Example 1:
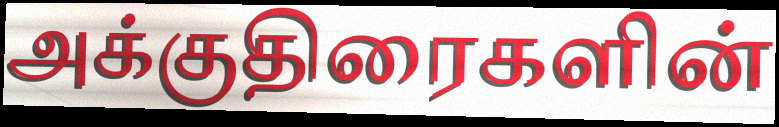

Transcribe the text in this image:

அக்குதிரைகளின்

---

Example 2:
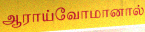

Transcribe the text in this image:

ஆராய்வோமானால்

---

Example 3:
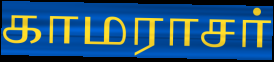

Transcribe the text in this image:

காமராசர்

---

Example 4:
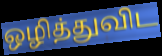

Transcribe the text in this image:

ஒழித்துவிட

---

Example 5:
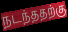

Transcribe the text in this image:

நடந்ததற்கு